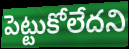
పెట్టుకోలేదని